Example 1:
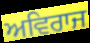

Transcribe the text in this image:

ਅਵਿਰਾਜ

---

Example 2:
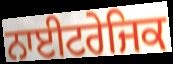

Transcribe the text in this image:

ਨਾਈਟਰੇਜਿਕ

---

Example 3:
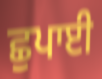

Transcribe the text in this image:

ਛੁਪਾਈ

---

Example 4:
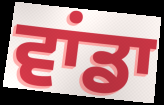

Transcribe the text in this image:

ਵਾਂਡਾ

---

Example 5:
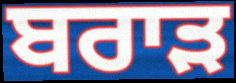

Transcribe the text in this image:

ਬਰਾੜ